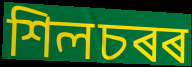
শিলচৰৰ